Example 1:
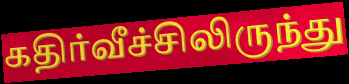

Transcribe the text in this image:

கதிர்வீச்சிலிருந்து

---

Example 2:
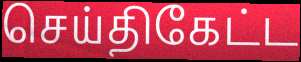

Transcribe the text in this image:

செய்திகேட்ட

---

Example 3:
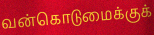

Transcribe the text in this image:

வன்கொடுமைக்குக்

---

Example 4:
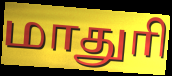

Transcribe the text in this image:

மாதுரி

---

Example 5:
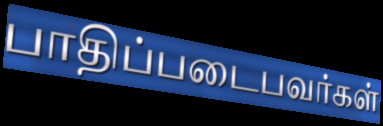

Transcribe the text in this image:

பாதிப்படைபவர்கள்